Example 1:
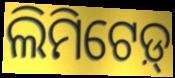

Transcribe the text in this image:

ଲିମିଟେଡ଼୍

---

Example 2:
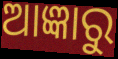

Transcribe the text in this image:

ଆଜ୍ଞାରୁ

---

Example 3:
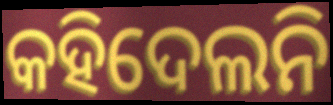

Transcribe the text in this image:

କହିଦେଲନି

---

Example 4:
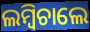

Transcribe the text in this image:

ଲମ୍ବିଚାଲେ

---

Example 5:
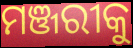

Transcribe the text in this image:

ମଞ୍ଜରୀକୁ